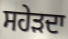
ਸਹੇੜਦਾ